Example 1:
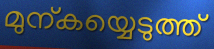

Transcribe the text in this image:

മുന്കയ്യെടുത്ത്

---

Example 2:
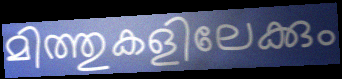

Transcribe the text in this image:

മിത്തുകളിലേക്കും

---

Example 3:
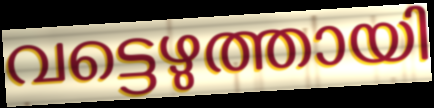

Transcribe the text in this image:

വട്ടെഴുത്തായി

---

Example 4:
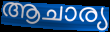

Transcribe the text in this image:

ആചാര്യ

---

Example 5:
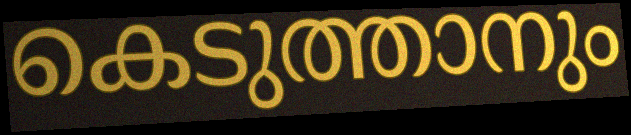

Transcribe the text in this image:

കെടുത്താനും